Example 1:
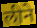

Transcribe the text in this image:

लीने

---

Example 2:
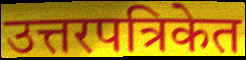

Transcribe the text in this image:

उत्तरपत्रिकेत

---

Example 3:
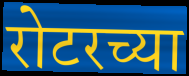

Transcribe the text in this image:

रोटरच्या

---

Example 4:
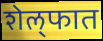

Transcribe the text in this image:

शेल्फात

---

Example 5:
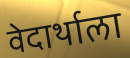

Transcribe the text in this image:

वेदार्थाला